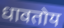
धावतोय